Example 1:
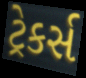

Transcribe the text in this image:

ટ્રેકર્સ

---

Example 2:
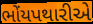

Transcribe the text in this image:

ભોંયપથારીએ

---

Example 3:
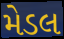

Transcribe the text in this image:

મેડલ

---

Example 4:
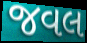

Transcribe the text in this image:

જવલ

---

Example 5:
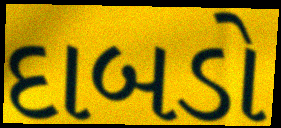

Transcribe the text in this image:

દાબડો